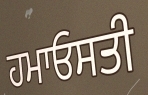
ਹਮਾਓਸਤੀ